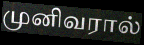
முனிவரால்